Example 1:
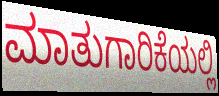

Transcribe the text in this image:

ಮಾತುಗಾರಿಕೆಯಲ್ಲಿ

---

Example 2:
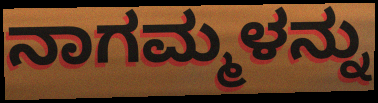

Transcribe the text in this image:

ನಾಗಮ್ಮಳನ್ನು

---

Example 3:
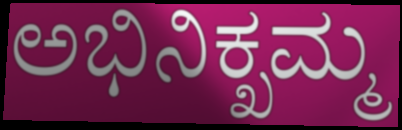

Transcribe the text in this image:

ಅಭಿನಿಕ್ಖಮ್ಮ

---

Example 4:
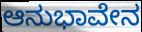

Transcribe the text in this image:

ಆನುಭಾವೇನ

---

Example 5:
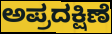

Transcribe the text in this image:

ಅಪ್ರದಕ್ಷಿಣೆ